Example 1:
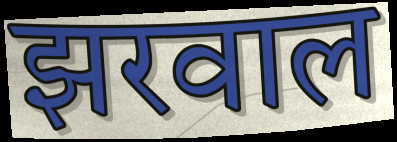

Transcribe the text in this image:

झरवाल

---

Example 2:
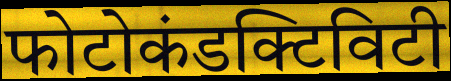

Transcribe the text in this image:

फोटोकंडक्टिविटी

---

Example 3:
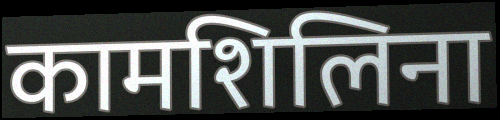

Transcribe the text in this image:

कामशिलिना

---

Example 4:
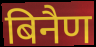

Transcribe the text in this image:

बिनैण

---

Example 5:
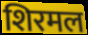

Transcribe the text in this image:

शिरमल